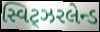
સ્વિટ્ઝરલેન્ડ